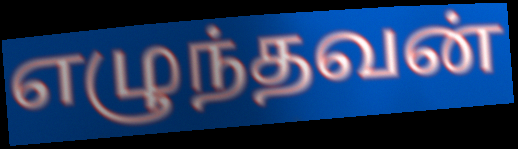
எழுந்தவன்